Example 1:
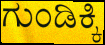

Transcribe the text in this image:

ಗುಂಡಿಕ್ಕಿ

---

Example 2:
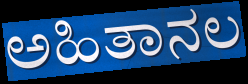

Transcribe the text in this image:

ಅಹಿತಾನಲ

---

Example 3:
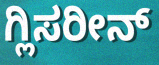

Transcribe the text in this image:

ಗ್ಲಿಸರೀನ್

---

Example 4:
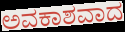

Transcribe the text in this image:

ಅವಕಾಶವಾದ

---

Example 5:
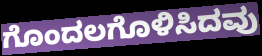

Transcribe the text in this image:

ಗೊಂದಲಗೊಳಿಸಿದವು